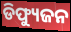
ଡିଫ୍ୟୁଜନ